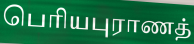
பெரியபுராணத்